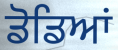
ਡੋਡਿਆਂ